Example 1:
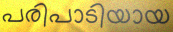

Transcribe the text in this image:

പരിപാടിയായ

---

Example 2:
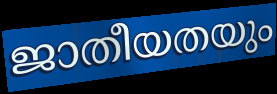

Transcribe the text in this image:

ജാതീയതയും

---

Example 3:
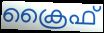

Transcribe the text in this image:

ക്രൈഫ്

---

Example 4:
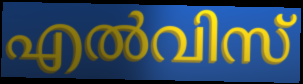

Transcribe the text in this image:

എൽവിസ്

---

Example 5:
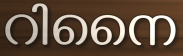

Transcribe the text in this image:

റിനൈ